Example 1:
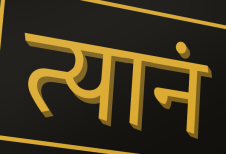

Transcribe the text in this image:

त्यानं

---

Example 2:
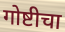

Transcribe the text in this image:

गोष्टीचा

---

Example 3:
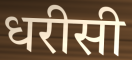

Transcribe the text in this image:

धरीसी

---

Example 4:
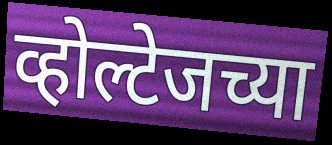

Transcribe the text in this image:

व्होल्टेजच्या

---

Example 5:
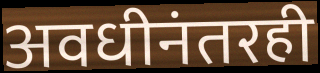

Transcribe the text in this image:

अवधीनंतरही